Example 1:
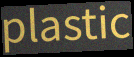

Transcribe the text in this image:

plastic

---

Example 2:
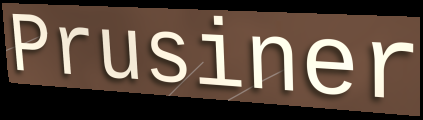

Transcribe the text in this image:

Prusiner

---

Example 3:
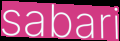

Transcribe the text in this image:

sabari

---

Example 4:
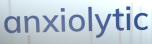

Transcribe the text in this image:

anxiolytic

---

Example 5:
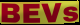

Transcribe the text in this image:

BEVs